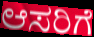
ಆಸರಿಗೆ